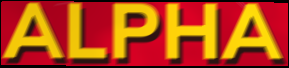
ALPHA